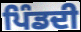
ਪਿੰਡਦੀ